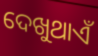
ଦେଖୁଥାଏଁ